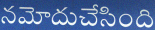
నమోదుచేసింది